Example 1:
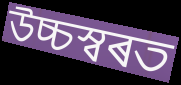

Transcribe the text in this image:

উচ্চস্বৰত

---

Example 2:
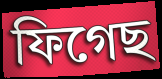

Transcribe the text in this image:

ফিগেছ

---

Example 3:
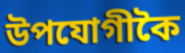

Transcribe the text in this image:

উপযোগীকৈ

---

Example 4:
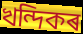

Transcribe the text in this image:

খন্দিকৰ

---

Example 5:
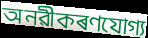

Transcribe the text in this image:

অনৱীকৰণযোগ্য